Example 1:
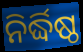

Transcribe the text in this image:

ନିର୍ଦ୍ଧିଷ୍ଠ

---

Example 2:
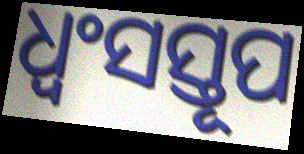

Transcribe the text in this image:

ଧ୍ୱଂସସ୍ତୂପ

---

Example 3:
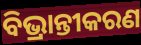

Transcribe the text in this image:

ବିଭ୍ରାନ୍ତୀକରଣ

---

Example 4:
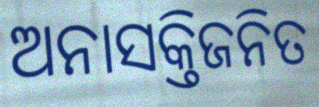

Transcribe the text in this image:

ଅନାସକ୍ତିଜନିତ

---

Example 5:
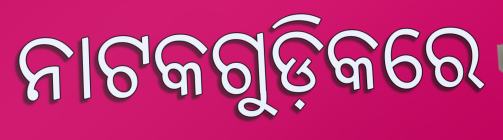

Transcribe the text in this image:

ନାଟକଗୁଡ଼ିକରେ